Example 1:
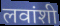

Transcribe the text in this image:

लवांशी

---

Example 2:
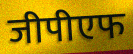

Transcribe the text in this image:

जीपीएफ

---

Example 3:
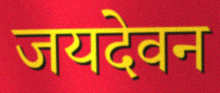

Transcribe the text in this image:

जयदेवन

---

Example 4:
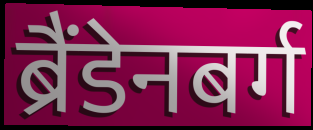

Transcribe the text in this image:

ब्रैंडेनबर्ग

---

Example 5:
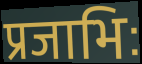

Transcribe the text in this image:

प्रजाभिः